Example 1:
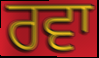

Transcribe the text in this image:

ਰਵਾ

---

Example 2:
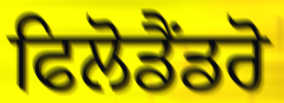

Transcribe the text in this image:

ਫਿਲੋਡੈਂਡਰੋ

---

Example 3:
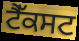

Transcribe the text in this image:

ਟੈੱਕਸਟ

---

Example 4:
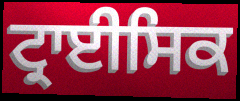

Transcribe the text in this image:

ਟ੍ਰਾਈਸਿਕ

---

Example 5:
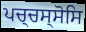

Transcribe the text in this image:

ਪਚ੍ਚਸ੍ਸੋਸਿ